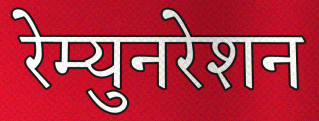
रेम्युनरेशन